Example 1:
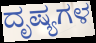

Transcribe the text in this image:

ದೃಷ್ಯಗಳ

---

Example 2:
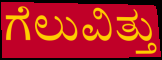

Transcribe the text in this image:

ಗೆಲುವಿತ್ತು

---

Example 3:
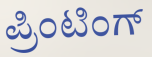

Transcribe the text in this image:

ಪ್ರಿಂಟಿಂಗ್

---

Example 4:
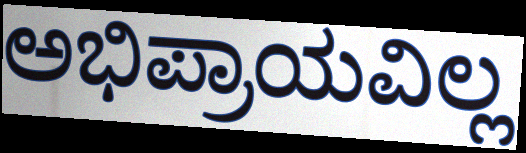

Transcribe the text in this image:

ಅಭಿಪ್ರಾಯವಿಲ್ಲ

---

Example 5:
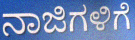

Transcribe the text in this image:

ನಾಜಿಗಳಿಗೆ